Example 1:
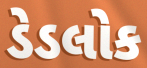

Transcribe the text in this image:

ડેડલોક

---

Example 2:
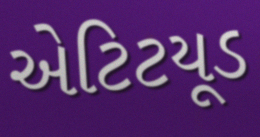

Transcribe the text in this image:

એટિટયૂડ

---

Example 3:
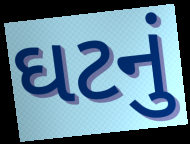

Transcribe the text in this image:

ઘટનું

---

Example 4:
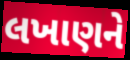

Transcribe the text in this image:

લખાણને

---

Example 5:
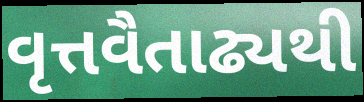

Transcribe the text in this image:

વૃત્તવૈતાઢ્યથી